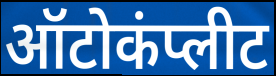
ऑटोकंप्लीट